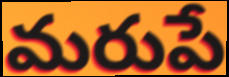
మరుపే